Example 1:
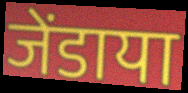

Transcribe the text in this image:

जेंडाया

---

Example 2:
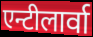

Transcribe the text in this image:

एन्टीलार्वा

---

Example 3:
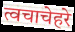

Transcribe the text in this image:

त्वचाचेहरे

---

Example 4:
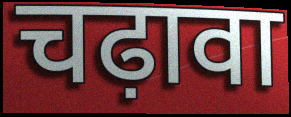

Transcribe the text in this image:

चढ़ावा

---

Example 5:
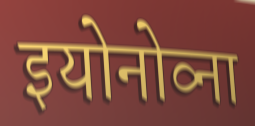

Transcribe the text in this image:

इयोनोव्ना